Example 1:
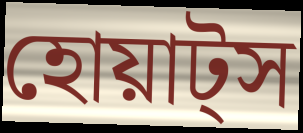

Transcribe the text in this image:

হোয়াট্স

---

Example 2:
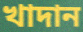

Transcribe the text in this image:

খাদান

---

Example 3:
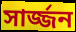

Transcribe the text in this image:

সার্জ্জন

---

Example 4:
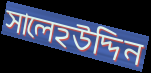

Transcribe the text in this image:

সালেহউদ্দিন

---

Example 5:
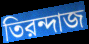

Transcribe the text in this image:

তিরন্দাজ